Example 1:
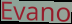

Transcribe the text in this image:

Evano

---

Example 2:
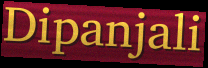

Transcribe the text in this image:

Dipanjali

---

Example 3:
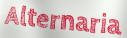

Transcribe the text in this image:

Alternaria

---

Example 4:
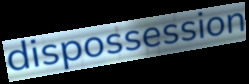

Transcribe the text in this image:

dispossession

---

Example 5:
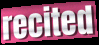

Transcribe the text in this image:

recited